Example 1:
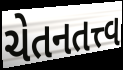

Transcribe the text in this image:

ચેતનતત્ત્વ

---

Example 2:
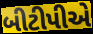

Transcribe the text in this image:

બીટીપીએ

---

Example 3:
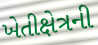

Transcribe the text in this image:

ખેતીક્ષેત્રની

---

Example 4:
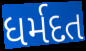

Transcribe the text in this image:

ધર્મદત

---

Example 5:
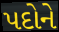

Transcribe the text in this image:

પદોને